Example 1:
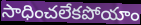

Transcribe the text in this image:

సాధించలేకపోయాం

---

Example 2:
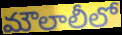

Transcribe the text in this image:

మౌలాలీలో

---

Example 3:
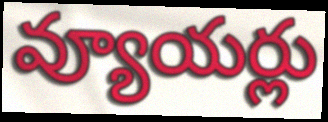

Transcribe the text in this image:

వ్యూయర్లు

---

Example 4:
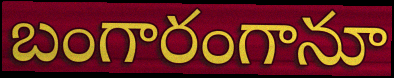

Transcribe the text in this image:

బంగారంగానూ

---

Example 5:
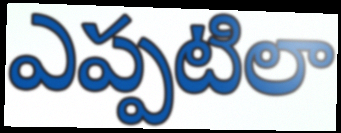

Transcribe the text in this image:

ఎప్పటిలా